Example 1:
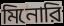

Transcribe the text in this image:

মিনোরি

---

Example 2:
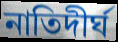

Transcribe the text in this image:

নাতিদীর্ঘ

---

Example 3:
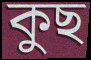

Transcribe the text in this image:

কুছ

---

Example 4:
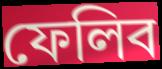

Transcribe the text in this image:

ফেলিব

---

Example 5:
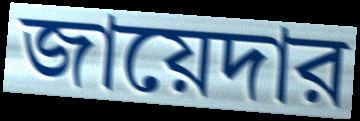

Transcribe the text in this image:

জায়েদার